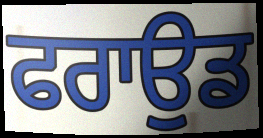
ਫਰਾਉਡ